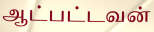
ஆட்பட்டவன்